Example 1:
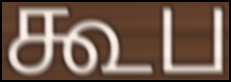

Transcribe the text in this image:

கூப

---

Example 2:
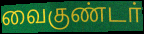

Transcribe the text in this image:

வைகுண்டர்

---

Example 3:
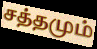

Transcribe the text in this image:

சத்தமும்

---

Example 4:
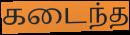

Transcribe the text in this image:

கடைந்த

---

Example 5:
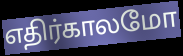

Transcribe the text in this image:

எதிர்காலமோ